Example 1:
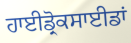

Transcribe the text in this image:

ਹਾਈਡ੍ਰੋਕਸਾਈਡਾਂ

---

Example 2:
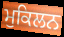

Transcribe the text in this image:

ਮੁਕਿਲਨ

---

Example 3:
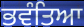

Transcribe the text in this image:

ਭਵੰਤਿਆ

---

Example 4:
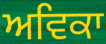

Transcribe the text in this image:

ਅਵਿਕਾ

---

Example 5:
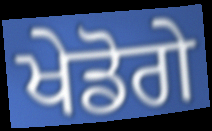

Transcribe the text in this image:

ਖੇਡੋਗੇ